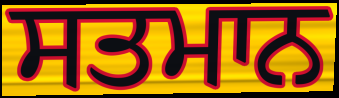
ਸਤਮਾਨ